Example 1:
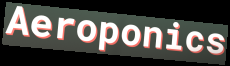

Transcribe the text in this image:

Aeroponics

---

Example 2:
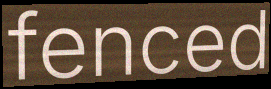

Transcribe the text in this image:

fenced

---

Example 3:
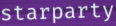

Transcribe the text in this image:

starparty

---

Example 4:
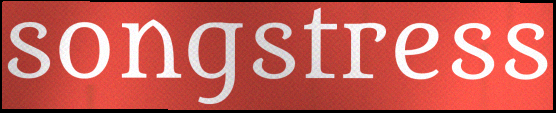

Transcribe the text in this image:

songstress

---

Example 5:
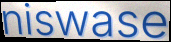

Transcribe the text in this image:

niswase